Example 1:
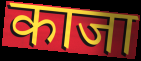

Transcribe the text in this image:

काजा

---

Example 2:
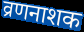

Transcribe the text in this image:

व्रणनाशक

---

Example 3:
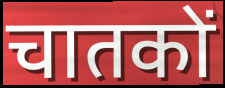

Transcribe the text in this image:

चातकों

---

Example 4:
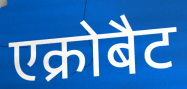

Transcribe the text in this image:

एक्रोबैट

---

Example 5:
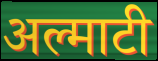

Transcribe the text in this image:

अल्माटी